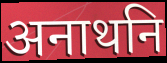
अनाथनि